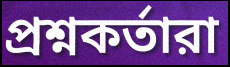
প্রশ্নকর্তারা